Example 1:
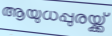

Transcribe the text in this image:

ആയുധപ്പുരയ്ക്ക്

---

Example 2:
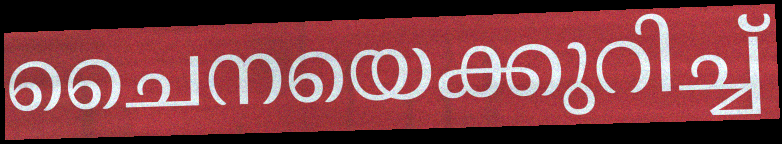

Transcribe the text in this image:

ചൈനയെക്കുറിച്ച്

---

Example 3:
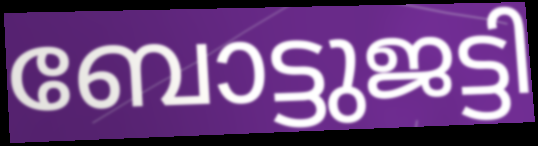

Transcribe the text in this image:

ബോട്ടുജട്ടി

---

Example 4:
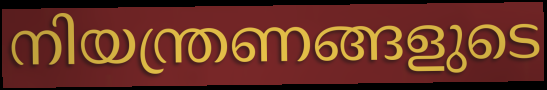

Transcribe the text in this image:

നിയന്ത്രണങ്ങളുടെ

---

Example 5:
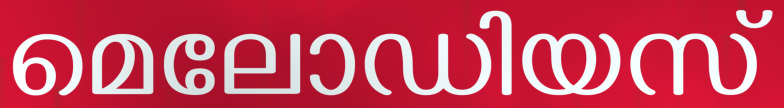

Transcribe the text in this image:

മെലോഡിയസ്